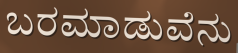
ಬರಮಾಡುವೆನು